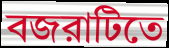
বজরাটিতে